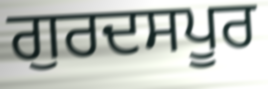
ਗੁਰਦਸਪੂਰ